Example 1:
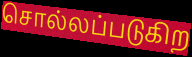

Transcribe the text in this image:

சொல்லப்படுகிற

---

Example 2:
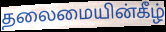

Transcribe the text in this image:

தலைமையின்கீழ்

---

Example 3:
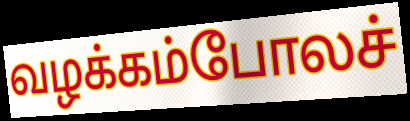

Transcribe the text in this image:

வழக்கம்போலச்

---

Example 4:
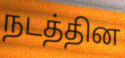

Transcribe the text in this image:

நடத்தின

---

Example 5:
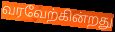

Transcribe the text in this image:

வரவேற்கின்றது